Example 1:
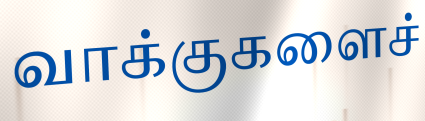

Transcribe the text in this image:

வாக்குகளைச்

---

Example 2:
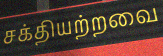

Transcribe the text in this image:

சக்தியற்றவை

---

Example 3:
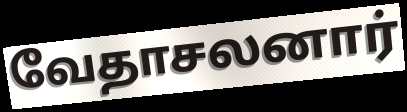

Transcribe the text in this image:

வேதாசலனார்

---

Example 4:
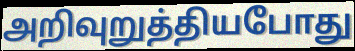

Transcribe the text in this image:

அறிவுறுத்தியபோது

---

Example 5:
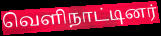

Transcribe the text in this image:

வெளிநாட்டினர்